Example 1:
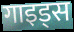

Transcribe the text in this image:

गाइड्स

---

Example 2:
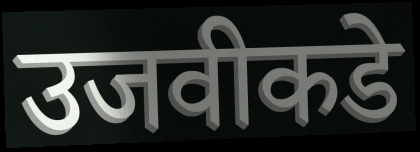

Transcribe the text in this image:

उजवीकडे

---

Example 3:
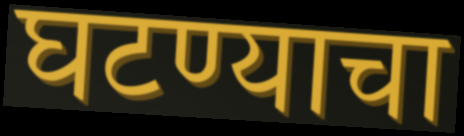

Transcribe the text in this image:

घटण्याचा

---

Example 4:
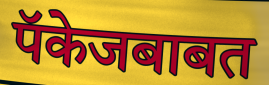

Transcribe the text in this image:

पॅकेजबाबत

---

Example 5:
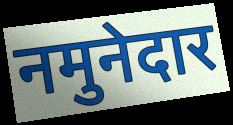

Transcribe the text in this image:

नमुनेदार